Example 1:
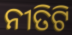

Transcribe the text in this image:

ନୀତିଟି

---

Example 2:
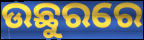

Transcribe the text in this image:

ଉଛୁରରେ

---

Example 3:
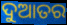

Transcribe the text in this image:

ଦୁଆତର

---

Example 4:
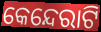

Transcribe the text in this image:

କେନ୍ଦେରାଟି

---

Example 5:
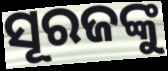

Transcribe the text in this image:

ସୂରଜଙ୍କୁ